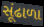
સૂંઢાળા